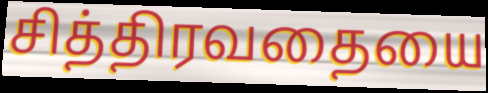
சித்திரவதையை